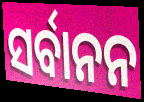
ସର୍ବାନନ